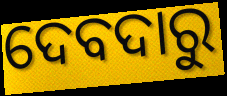
ଦେବଦାରୁ